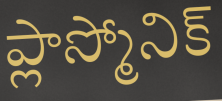
ప్లాస్మోనిక్